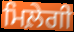
ਮਿਲ਼ੇਗੀ